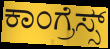
ಕಾಂಗ್ರೆಸ್ಸ್